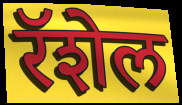
रॅशेल